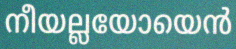
നീയല്ലയോയെൻ